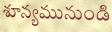
శూన్యమునుండి